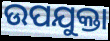
ଉପଯୁକ୍ତା